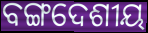
ବଙ୍ଗଦେଶୀୟ